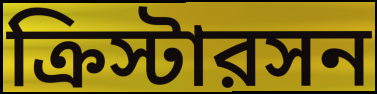
ক্রিস্টারসন